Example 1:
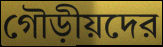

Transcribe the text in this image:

গৌড়ীয়দের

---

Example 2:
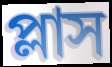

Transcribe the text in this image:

প্লাস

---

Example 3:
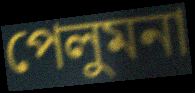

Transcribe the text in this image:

পেলুমনা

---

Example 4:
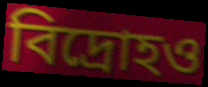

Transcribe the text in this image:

বিদ্রোহও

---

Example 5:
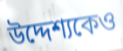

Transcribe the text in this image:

উদ্দেশ্যকেও